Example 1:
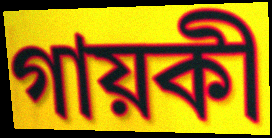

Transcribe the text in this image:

গায়কী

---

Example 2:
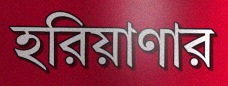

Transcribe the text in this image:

হরিয়াণার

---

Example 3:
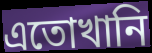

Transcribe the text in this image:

এতোখানি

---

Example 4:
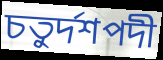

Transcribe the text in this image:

চতুর্দশপদী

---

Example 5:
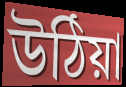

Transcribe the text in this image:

উঠিয়া